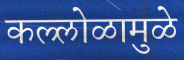
कल्लोळामुळे